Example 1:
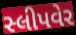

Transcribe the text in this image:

સ્લીપવેર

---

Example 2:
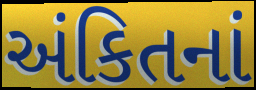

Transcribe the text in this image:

અંકિતનાં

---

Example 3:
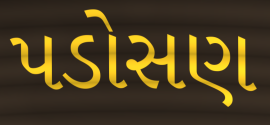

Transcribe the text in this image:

પડોસણ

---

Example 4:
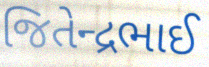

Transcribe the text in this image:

જિતેન્દ્રભાઈ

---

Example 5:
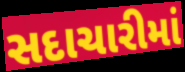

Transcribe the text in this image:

સદાચારીમાં